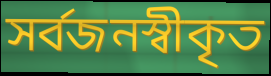
সর্বজনস্বীকৃত